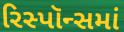
રિસ્પૉન્સમાં